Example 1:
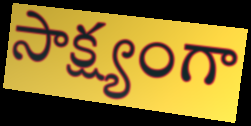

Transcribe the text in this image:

సాక్ష్యంగా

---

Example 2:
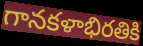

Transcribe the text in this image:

గానకళాభిరతికి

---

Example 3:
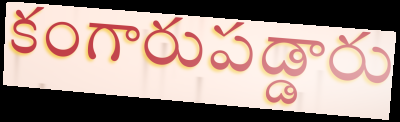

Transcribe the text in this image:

కంగారుపడ్డారు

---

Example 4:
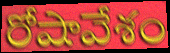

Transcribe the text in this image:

రోషావేశం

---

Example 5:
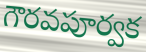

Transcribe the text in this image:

గౌరవపూర్వక